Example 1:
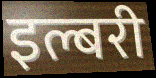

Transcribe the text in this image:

इल्बरी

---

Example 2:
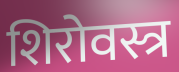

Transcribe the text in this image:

शिरोवस्त्र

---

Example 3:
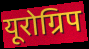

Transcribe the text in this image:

यूरोग्रिप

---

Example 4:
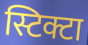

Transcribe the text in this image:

स्टिक्टा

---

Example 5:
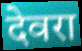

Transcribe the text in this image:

देवरा